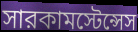
সারকামস্টেন্সেস